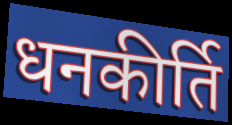
धनकीर्ति